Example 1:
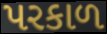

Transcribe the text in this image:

પરકાળ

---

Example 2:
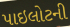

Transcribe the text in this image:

પાઇલોટની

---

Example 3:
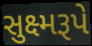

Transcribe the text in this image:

સુક્ષ્મરૂપે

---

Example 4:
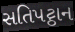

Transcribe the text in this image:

સતિપટ્ઠાન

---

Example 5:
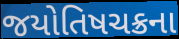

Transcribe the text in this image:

જયોતિષચક્રના